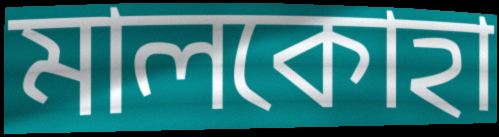
মালকোহা